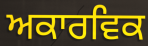
ਅਕਾਰਵਿਕ